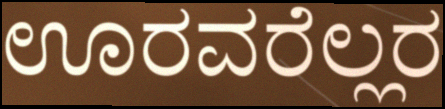
ಊರವರೆಲ್ಲರ